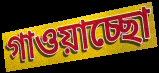
গাওয়াচ্ছো